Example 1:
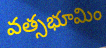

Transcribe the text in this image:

వత్సభూమిం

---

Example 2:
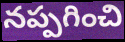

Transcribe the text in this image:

నప్పగించి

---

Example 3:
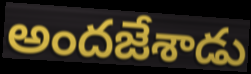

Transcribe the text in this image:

అందజేశాడు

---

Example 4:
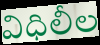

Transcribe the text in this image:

విధిలీల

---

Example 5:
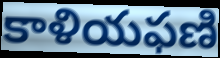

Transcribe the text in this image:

కాళియఫణి